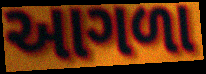
આગળા